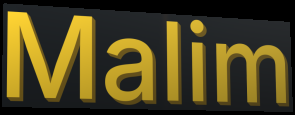
Malim